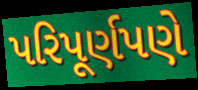
પરિપૂર્ણપણે